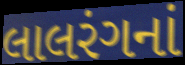
લાલરંગનાં